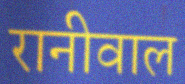
रानीवाल